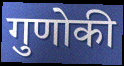
गुणोकी